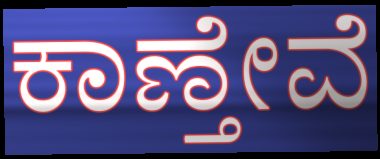
ಕಾಣ್ತೇವೆ